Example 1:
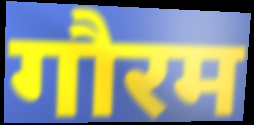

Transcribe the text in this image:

गौरम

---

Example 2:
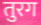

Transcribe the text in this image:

तुरग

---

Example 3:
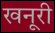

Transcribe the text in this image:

खनूरी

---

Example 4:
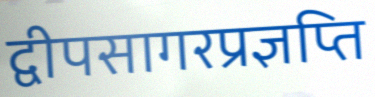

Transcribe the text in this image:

द्वीपसागरप्रज्ञप्ति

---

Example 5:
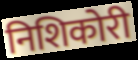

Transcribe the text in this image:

निशिकोरी